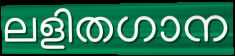
ലളിതഗാന